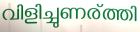
വിളിച്ചുണര്ത്തി